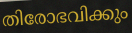
തിരോഭവിക്കും